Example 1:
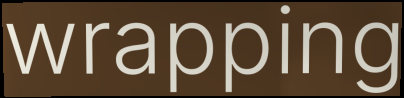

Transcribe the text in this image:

wrapping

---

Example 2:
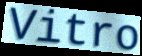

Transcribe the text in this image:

Vitro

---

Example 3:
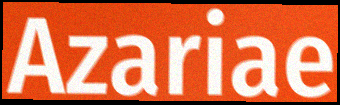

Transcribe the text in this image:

Azariae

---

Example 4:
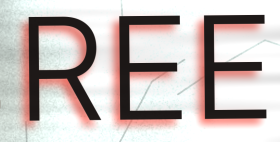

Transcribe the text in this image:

REE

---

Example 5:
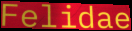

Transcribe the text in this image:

Felidae